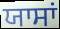
ਯਾਸਾਂ